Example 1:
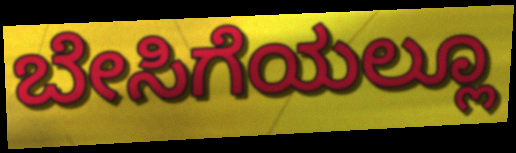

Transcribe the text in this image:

ಬೇಸಿಗೆಯಲ್ಲೂ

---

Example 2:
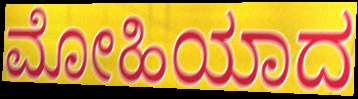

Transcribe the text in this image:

ಮೋಹಿಯಾದ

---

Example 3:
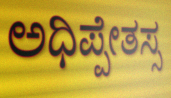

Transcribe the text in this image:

ಅಧಿಪ್ಪೇತಸ್ಸ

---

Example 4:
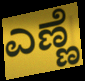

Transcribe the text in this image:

ಎಣ್ಣೆ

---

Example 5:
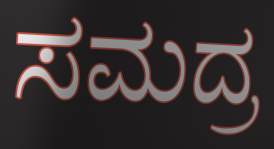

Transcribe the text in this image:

ಸಮದ್ರ